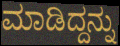
ಮಾಡಿದ್ದನ್ನು